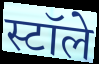
स्टॉले